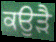
ਕਉੜੈ